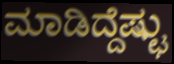
ಮಾಡಿದ್ದೆಷ್ಟು